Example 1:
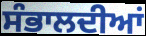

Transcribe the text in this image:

ਸੰਭਾਲਦੀਆਂ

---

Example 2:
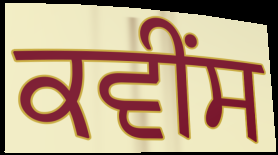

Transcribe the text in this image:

ਕਵੀਂਸ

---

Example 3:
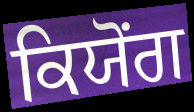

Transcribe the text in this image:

ਕਿਯੋਂਗ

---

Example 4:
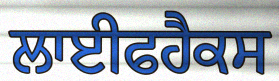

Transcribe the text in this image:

ਲਾਈਫਹੈਕਸ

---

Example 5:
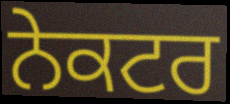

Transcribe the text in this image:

ਨੇਕਟਰ